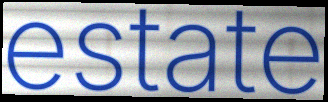
estate